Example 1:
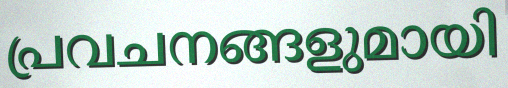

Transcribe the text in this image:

പ്രവചനങ്ങളുമായി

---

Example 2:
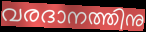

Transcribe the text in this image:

വരദാനത്തിനു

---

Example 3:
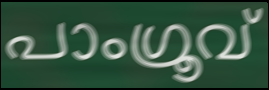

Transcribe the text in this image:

പാംഗ്രൂവ്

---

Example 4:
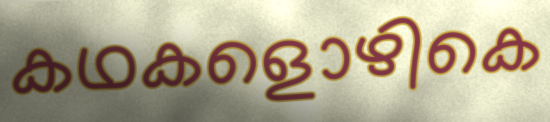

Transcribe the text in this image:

കഥകളൊഴികെ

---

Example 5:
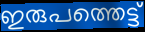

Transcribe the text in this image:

ഇരുപത്തെട്ട്